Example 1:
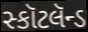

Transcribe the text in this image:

સ્કૉટલૅન્ડ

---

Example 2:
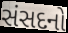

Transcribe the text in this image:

સંસદનો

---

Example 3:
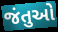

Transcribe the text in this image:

જંતુઓ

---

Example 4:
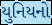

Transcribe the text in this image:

યુનિયનો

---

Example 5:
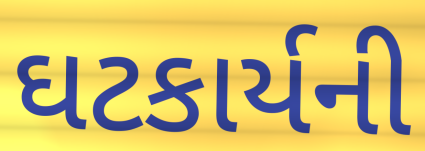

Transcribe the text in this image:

ઘટકાર્યની